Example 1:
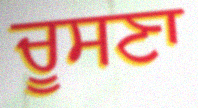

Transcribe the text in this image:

ਚੂਸਣਾ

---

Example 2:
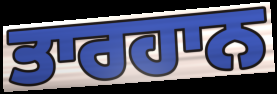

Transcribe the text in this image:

ਤਾਰਹਾਨ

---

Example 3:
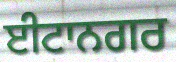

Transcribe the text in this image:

ਈਟਾਨਗਰ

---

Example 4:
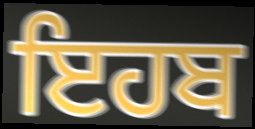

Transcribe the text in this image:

ਇਹਬ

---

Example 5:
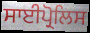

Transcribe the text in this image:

ਸਾਈਪ੍ਰੋਲਿਸ